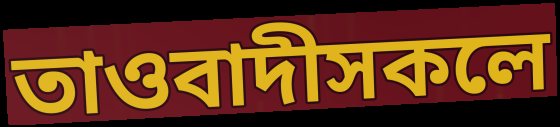
তাওবাদীসকলে